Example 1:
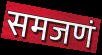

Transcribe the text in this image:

समजणं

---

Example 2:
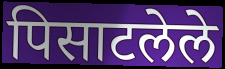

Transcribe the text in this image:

पिसाटलेले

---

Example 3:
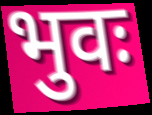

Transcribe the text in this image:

भुवः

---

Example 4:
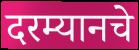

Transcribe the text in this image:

दरम्यानचे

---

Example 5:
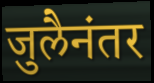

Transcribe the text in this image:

जुलैनंतर